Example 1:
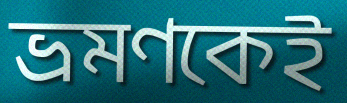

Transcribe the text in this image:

ভ্রমণকেই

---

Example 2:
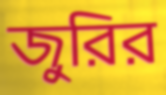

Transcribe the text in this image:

জুরির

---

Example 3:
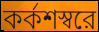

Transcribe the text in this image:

কর্কশস্বরে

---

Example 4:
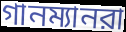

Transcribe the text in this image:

গানম্যানরা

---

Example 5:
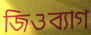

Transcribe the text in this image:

জিওব্যাগ